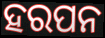
ହରପନ